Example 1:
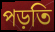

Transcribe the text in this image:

পড়তি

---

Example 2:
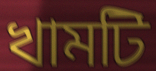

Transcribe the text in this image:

খামটি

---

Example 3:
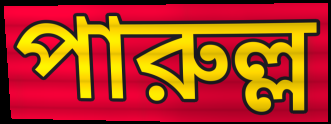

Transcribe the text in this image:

পারুল্ল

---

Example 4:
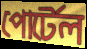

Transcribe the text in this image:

পোর্টেল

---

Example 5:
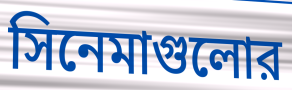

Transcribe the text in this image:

সিনেমাগুলোর